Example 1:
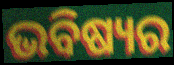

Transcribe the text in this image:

ଭବିଷ୍ୟର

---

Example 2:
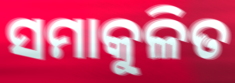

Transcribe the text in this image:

ସମାକୁଳିତ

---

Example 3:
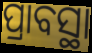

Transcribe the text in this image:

ପ୍ରାବସ୍ଥା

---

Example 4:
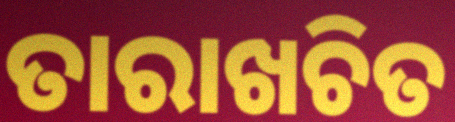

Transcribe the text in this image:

ତାରାଖଚିତ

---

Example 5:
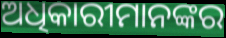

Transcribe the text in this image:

ଅଧିକାରୀମାନଙ୍କର